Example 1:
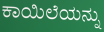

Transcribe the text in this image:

ಕಾಯಿಲೆಯನ್ನು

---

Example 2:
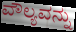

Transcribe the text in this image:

ವೌಲ್ಯವನ್ನು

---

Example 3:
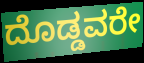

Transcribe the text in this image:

ದೊಡ್ಡವರೇ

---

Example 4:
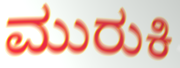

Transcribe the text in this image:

ಮುರುಕಿ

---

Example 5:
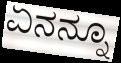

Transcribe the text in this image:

ಏನನ್ನೂ